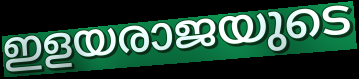
ഇളയരാജയുടെ